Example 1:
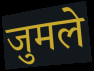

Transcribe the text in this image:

जुमले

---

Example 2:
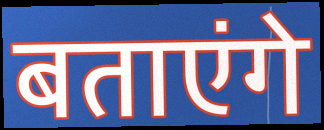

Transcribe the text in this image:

बताएंगे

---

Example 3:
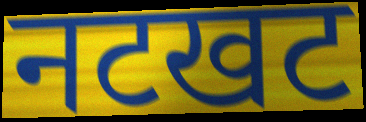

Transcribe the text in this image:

नटखट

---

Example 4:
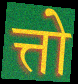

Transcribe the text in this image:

त्तो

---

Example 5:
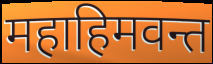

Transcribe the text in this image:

महाहिमवन्त